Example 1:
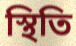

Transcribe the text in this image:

স্থিতি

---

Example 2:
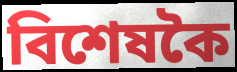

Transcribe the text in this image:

বিশেষকৈ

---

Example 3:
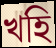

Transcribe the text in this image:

খহি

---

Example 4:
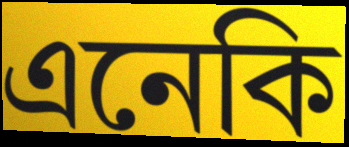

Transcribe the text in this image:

এনেকি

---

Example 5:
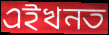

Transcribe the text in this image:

এইখনত